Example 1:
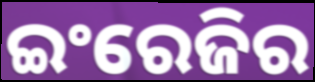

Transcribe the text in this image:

ଇଂରେଜିର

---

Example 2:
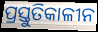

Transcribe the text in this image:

ପ୍ରସ୍ତୁତିକାଳୀନ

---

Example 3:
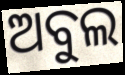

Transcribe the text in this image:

ଅବୁଲ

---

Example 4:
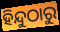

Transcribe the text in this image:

ହିନ୍ଦୁଠାରୁ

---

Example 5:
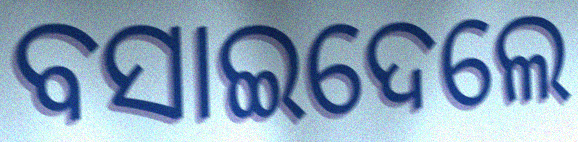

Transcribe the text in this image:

ବସାଇଦେଲେ